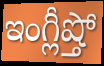
ఇంగ్లీష్తో